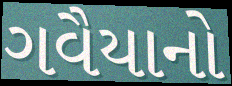
ગવૈયાનો